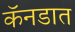
कॅनडात